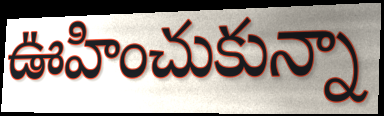
ఊహించుకున్నా